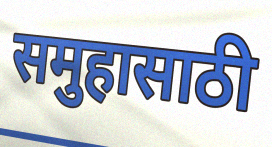
समुहासाठी